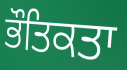
ਭੌਤਿਕਤਾ